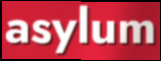
asylum